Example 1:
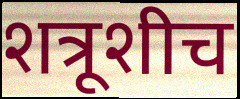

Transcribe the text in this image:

शत्रूशीच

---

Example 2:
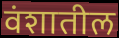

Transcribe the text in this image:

वंशातील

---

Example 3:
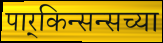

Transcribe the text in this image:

पार्किन्सन्सच्या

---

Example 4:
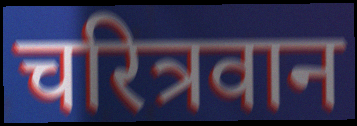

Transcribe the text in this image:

चरित्रवान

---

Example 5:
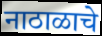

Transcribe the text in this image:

नाठाळाचे